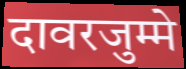
दावरजुम्मे